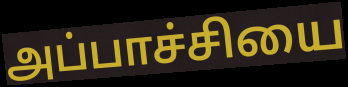
அப்பாச்சியை